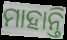
ମାହାନ୍ତି